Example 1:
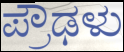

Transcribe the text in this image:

ಪ್ರೌಢಳು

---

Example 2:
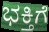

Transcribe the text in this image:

ಭಕ್ತಿಗೆ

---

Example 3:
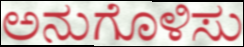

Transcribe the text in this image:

ಅನುಗೊಳಿಸು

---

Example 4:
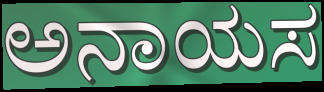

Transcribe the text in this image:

ಅನಾಯಸ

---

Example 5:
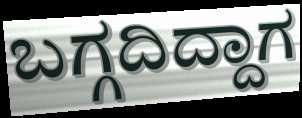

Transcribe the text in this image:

ಬಗ್ಗದಿದ್ದಾಗ